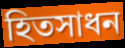
হিতসাধন